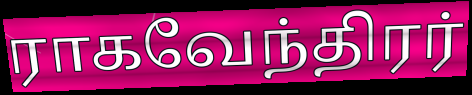
ராகவேந்திரர்